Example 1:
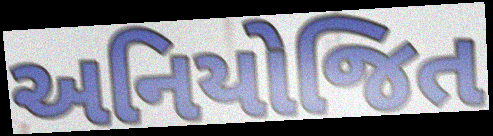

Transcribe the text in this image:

અનિયોજિત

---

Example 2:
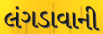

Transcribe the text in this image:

લંગડાવાની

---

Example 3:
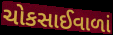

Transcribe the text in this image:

ચોકસાઈવાળાં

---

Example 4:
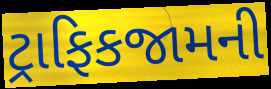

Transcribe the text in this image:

ટ્રાફિકજામની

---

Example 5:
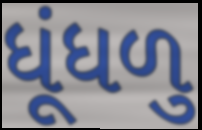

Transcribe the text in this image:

ધૂંધળુ